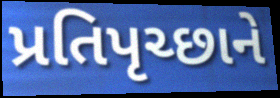
પ્રતિપૃચ્છાને